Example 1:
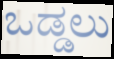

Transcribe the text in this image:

ಒಡ್ಡಲು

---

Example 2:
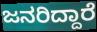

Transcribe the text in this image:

ಜನರಿದ್ದಾರೆ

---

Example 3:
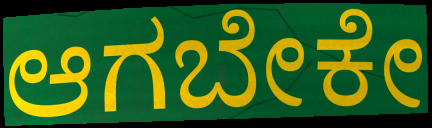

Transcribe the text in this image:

ಆಗಬೇಕೇ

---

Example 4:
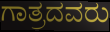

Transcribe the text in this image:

ಗಾತ್ರದವರು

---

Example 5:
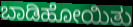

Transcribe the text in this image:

ಬಾಡಿಹೋಯಿತು